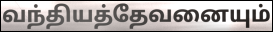
வந்தியத்தேவனையும்